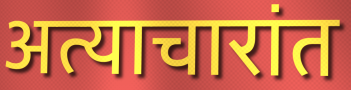
अत्याचारांत